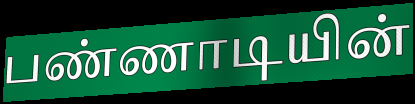
பண்ணாடியின்